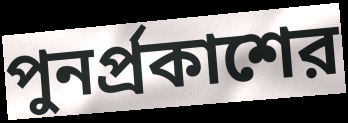
পুনর্প্রকাশের